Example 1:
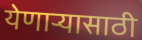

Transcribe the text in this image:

येणाऱ्यासाठी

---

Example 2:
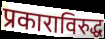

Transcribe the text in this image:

प्रकाराविरुद्ध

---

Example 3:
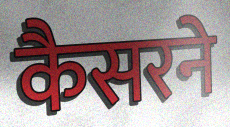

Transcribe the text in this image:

कैसरने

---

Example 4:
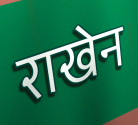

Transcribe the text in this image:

राखेन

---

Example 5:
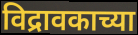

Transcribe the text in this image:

विद्रावकाच्या